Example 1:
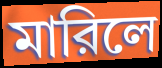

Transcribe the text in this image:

মারিলে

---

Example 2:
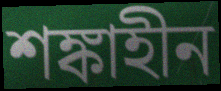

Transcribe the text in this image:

শঙ্কাহীন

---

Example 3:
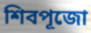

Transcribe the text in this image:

শিবপূজো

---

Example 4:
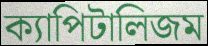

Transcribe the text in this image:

ক্যাপিটালিজম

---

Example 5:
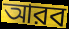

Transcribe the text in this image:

আরব